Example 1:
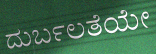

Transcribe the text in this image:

ದುರ್ಬಲತೆಯೇ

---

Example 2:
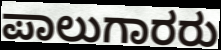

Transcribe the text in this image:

ಪಾಲುಗಾರರು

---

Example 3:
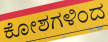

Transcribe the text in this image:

ಕೋಶಗಳಿಂದ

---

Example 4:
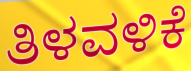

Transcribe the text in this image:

ತಿಳವಳಿಕೆ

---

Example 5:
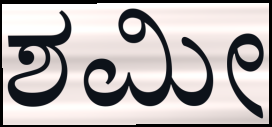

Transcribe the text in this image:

ಶಮೀ